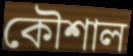
কৌশাল